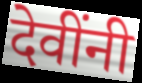
देवींनी